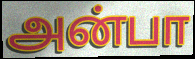
அன்பா